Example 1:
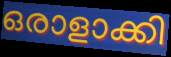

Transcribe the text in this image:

ഒരാളാക്കി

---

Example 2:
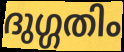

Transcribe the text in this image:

ദുഗ്ഗതിം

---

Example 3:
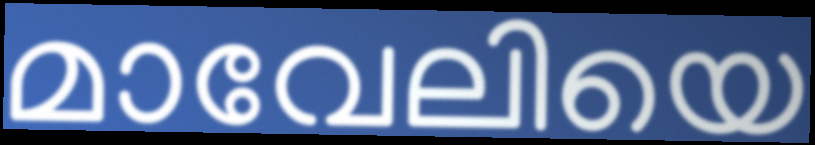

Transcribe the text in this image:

മാവേലിയെ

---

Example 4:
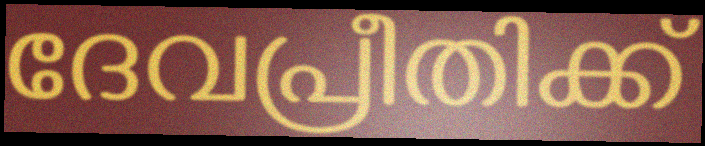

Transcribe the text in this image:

ദേവപ്രീതിക്ക്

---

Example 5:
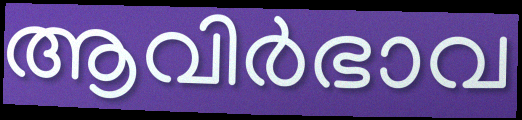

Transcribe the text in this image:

ആവിർഭാവ